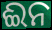
ଈନ